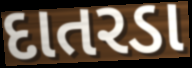
દાતરડા